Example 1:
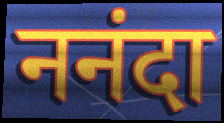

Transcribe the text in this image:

ननंदा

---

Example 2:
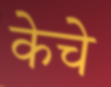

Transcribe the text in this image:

केचे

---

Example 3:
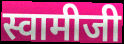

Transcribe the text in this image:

स्वामीजी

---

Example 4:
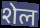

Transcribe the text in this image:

शेल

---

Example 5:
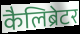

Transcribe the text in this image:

कैलिब्रेटर